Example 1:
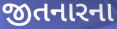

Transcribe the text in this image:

જીતનારના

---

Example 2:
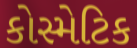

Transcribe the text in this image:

કોસ્મેટિક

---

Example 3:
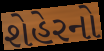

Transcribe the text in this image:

શેહેરનો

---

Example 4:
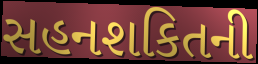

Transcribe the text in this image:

સહનશકિતની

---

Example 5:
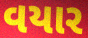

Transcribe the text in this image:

વયાર